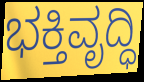
ಭಕ್ತಿವೃದ್ಧಿ